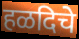
हळदिचे